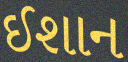
ઈશાન